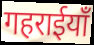
गहराईयाँ